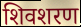
शिवशरण